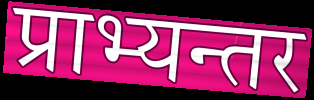
प्राभ्यन्तर